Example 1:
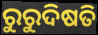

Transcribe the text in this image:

ରୁରୁଦିଷତି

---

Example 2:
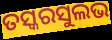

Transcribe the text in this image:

ତସ୍କରସୁଲଭ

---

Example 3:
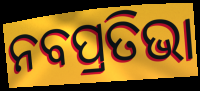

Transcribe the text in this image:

ନବପ୍ରତିଭା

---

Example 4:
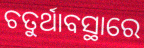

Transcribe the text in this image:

ଚତୁର୍ଥାବସ୍ଥାରେ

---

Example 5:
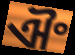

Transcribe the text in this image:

ଐଂ